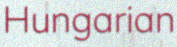
Hungarian